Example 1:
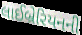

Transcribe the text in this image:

લાઈબ્રેરિયનની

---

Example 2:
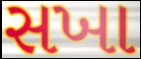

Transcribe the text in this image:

સખા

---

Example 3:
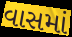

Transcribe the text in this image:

વાસમાં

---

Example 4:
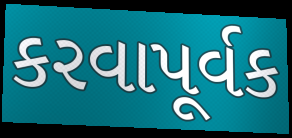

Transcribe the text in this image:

કરવાપૂર્વક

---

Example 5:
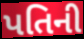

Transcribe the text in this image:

પતિની